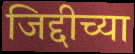
जिद्दीच्या